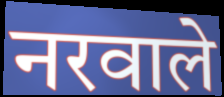
नरवाले